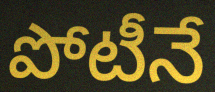
పోటీనే